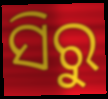
ସିରୁ